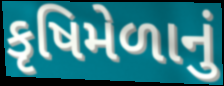
કૃષિમેળાનું